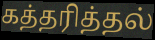
கத்தரித்தல்